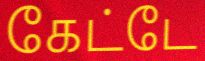
கேட்டே